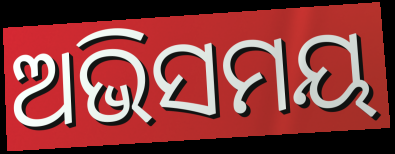
ଅଭିସମୟ